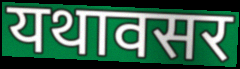
यथावसर